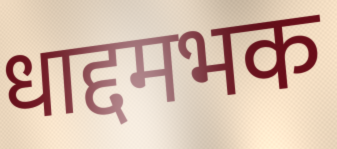
धाद्दमभक